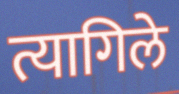
त्यागिले